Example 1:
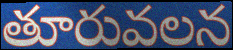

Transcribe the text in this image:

తూరువలన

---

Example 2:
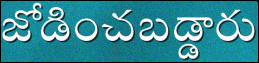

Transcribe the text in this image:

జోడించబడ్డారు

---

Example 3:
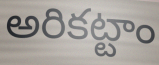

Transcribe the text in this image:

అరికట్టాం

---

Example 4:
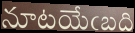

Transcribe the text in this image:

నూటయేఁబది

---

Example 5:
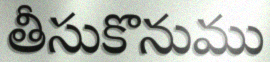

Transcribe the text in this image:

తీసుకొనుము